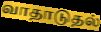
வாதாடுதல்